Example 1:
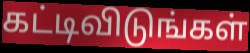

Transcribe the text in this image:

கட்டிவிடுங்கள்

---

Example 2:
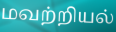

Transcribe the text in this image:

மவற்றியல்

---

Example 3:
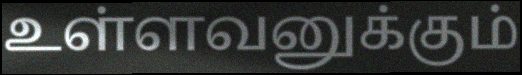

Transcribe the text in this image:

உள்ளவனுக்கும்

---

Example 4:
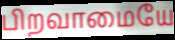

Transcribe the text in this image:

பிறவாமையே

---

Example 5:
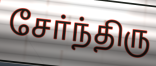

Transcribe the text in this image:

சேர்ந்திரு